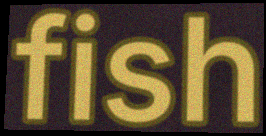
fish